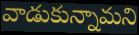
వాడుకున్నామని